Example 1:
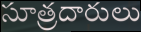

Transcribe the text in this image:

సూత్రదారులు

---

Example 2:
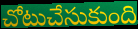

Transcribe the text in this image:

చోటుచేసుకుంది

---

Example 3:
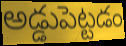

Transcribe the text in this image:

అడ్డుపెట్టడం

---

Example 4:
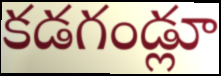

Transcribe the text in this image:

కడగండ్లూ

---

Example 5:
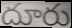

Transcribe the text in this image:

దూరు